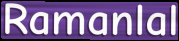
Ramanlal